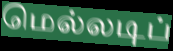
மெல்லடிப்